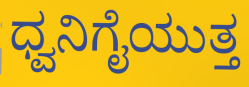
ಧ್ವನಿಗೈಯುತ್ತ